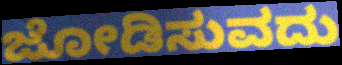
ಜೋಡಿಸುವದು